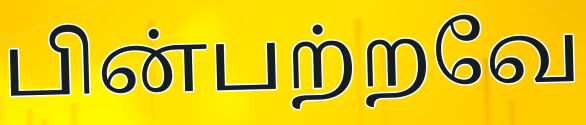
பின்பற்றவே